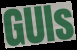
GUIs